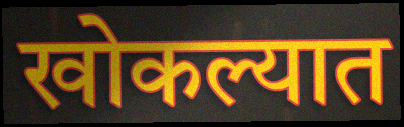
खोकल्यात